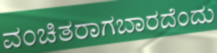
ವಂಚಿತರಾಗಬಾರದೆಂದು